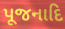
પૂજનાદિ